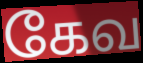
கேவ